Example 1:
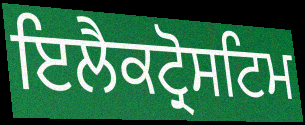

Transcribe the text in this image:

ਇਲੈਕਟ੍ਰੋਸਟਿਮ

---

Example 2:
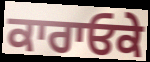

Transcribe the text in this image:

ਕਾਰਾਓਕੇ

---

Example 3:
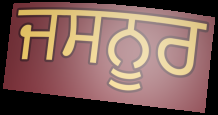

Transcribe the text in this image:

ਜਸਨੂਰ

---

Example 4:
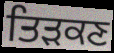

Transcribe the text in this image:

ਤਿੜਕਣ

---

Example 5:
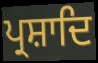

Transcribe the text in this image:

ਪ੍ਰਸ਼ਾਦਿ